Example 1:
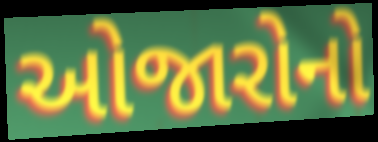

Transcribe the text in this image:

ઓજારોનો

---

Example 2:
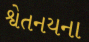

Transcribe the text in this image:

શ્વેતનયના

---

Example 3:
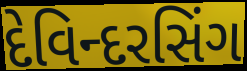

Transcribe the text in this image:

દેવિન્દરસિંગ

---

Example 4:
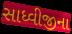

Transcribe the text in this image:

સાધ્વીજીના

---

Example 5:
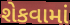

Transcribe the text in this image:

શેકવામાં